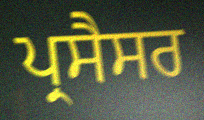
ਪ੍ਰਸੈਸਰ